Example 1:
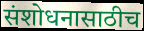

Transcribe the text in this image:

संशोधनासाठीच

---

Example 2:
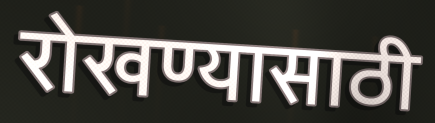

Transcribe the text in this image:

रोखण्यासाठी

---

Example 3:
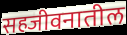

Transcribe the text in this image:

सहजीवनातील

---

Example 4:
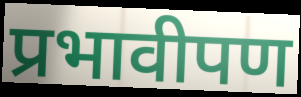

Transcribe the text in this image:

प्रभावीपण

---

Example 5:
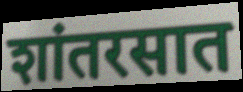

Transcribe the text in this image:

शांतरसात